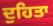
ਦੁਹਿਤਾ